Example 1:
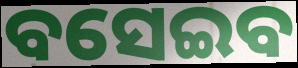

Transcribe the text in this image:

ବସେଇବ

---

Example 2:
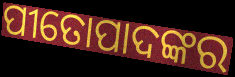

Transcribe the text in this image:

ପୀତୋପାଦଙ୍କର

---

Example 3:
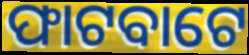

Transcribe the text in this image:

ଫାଟବାଟେ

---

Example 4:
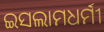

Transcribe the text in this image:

ଇସଲାମଧର୍ମୀ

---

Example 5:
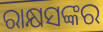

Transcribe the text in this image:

ରାକ୍ଷସଙ୍କର